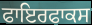
ਫਾਇਰਫਾਕਸ